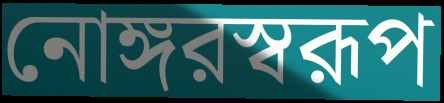
নোঙ্গরস্বরূপ